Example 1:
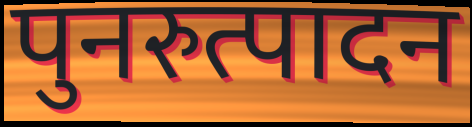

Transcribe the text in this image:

पुनरुत्पादन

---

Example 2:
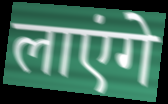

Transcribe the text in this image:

लाएंगे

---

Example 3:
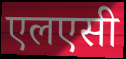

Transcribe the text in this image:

एलएसी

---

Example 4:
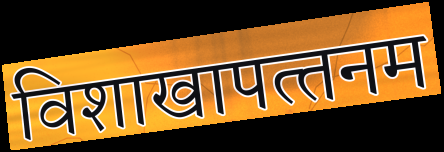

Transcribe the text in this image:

विशाखापत्‍तनम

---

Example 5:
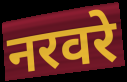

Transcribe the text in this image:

नरवरे